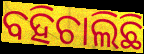
ବହିଚାଲିଛି